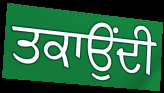
ਤਕਾਉਂਦੀ